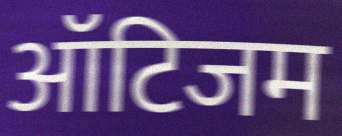
ऑटिजम